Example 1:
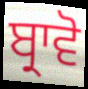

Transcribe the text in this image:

ਬ੍ਰਾਵੋ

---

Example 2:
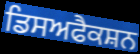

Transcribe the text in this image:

ਡਿਸਅਫੈਕਸ਼ਨ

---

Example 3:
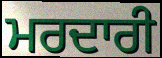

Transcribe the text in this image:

ਮਰਦਾਰੀ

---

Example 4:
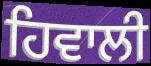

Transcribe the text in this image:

ਹਿਵਾਲੀ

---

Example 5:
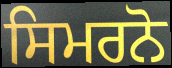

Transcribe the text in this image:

ਸਿਮਰਨੋ